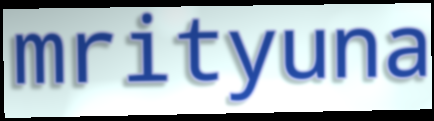
mrityuna